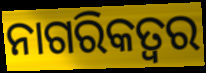
ନାଗରିକତ୍ୱର